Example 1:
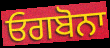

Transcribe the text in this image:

ਓਗਬੋਨਾ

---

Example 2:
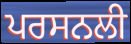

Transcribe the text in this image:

ਪਰਸਨਲੀ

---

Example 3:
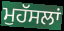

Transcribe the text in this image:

ਮੁਹੱਸਲਾਂ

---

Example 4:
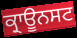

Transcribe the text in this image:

ਕ੍ਰਾਊਨਸਟ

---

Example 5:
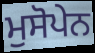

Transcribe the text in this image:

ਮੁਸੋਪੇਨ